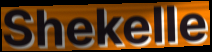
Shekelle